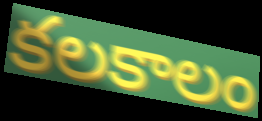
కలకాలం